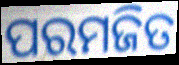
ପରମଜିତ